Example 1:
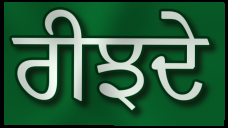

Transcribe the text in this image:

ਰੀਝਦੇ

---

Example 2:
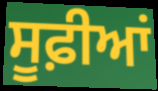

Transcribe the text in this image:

ਸੂਫ਼ੀਆਂ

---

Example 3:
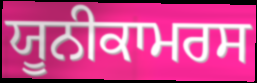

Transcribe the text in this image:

ਯੂਨੀਕਾਮਰਸ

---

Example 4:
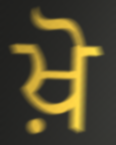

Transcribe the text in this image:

ਖ਼ੋ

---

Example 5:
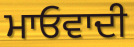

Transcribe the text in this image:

ਮਾਓਵਾਦੀ